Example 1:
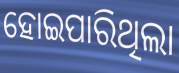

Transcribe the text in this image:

ହୋଇପାରିଥିଲା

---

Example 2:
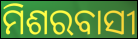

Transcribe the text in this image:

ମିଶରବାସୀ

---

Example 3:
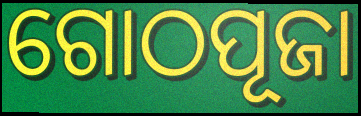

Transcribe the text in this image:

ଗୋଠପୂଜା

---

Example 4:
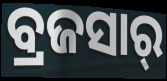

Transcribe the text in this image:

ବ୍ରଜସାର୍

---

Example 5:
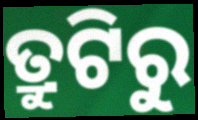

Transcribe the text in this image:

ତ୍ରୁଟିରୁ